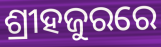
ଶ୍ରୀହଜୁରରେ